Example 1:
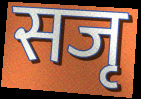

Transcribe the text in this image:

सजृ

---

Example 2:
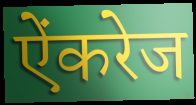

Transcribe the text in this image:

ऐंकरेज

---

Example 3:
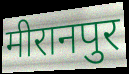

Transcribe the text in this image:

मीरानपुर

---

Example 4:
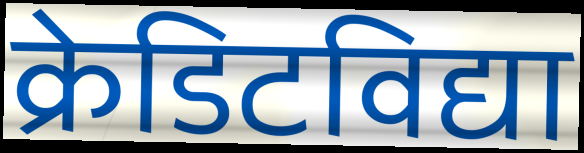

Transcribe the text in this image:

क्रेडिटविद्या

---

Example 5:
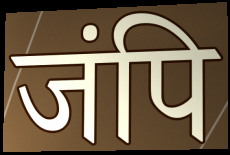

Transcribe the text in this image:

जंपि